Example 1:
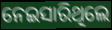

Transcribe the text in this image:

ନେଇସାରିଥିଲେ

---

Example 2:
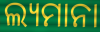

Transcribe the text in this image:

ଲ୍ୟମାନା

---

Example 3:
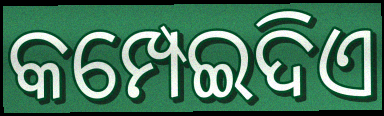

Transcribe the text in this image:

କମ୍ପେଇଦିଏ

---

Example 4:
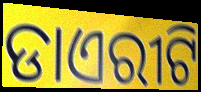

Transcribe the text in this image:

ଡାଏରୀଟି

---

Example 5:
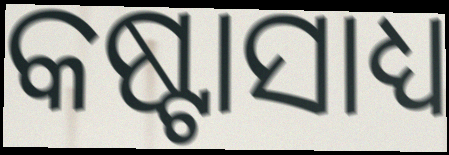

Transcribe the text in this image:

କଷ୍ଟାସାଧ୍ୟ